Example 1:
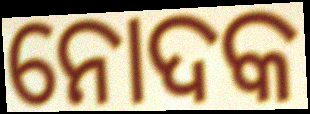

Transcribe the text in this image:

ନୋଦକ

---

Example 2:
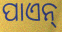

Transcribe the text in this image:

ପାଏନ୍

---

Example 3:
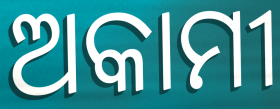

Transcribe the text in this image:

ଅକାମୀ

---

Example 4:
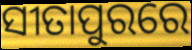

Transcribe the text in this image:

ସୀତାପୁରରେ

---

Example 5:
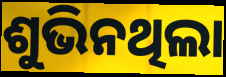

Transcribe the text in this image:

ଶୁଭିନଥିଲା